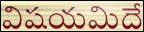
విషయమిదే